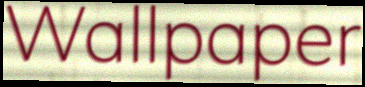
Wallpaper